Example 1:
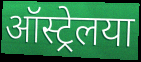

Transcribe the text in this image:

ऑस्ट्रेलया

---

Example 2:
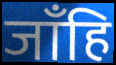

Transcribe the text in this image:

जाँहि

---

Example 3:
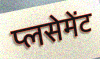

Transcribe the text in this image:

प्लसेमेंट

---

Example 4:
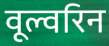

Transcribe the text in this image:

वूल्वरिन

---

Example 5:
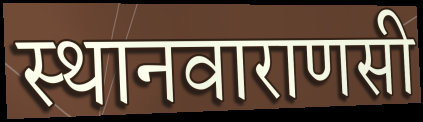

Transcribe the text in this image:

स्थानवाराणसी